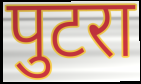
पुटरा